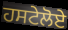
ਹਸਟੇਲੋਏ